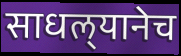
साधल्यानेच